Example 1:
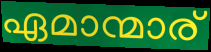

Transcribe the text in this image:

ഏമാന്മാര്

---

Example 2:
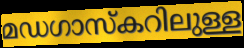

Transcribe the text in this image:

മഡഗാസ്കറിലുള്ള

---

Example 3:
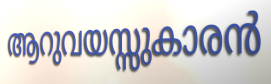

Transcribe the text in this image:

ആറുവയസ്സുകാരൻ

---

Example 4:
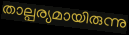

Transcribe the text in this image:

താല്പര്യമായിരുന്നു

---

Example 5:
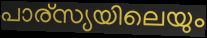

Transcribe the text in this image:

പാര്സ്യയിലെയും